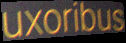
uxoribus